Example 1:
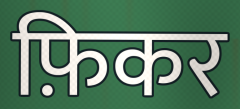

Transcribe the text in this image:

फ़िकर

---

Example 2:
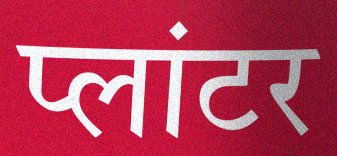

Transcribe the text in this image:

प्लांटर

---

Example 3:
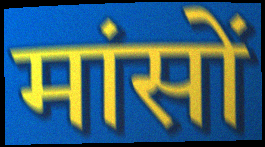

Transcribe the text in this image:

मांसों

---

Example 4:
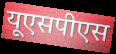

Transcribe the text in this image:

यूएसपीएस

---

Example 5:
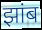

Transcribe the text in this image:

झांब